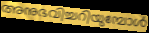
അനുഭവിച്ചറിയുമ്പോൾ